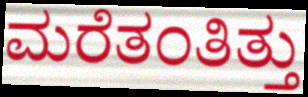
ಮರೆತಂತಿತ್ತು